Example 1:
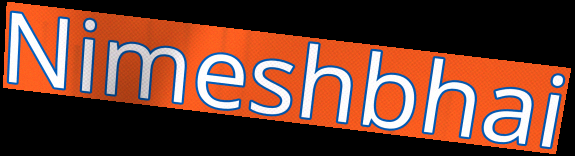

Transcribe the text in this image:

Nimeshbhai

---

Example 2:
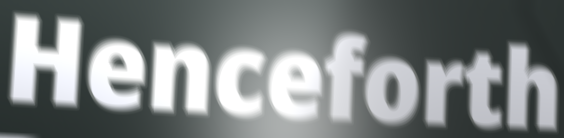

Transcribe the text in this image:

Henceforth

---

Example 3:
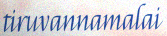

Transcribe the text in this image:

tiruvannamalai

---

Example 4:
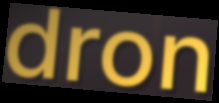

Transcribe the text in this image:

dron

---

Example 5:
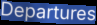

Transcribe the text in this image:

Departures